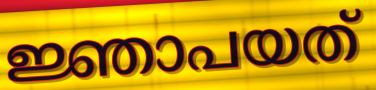
ജ്ഞാപയത്